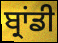
ਬ੍ਰਾਂਡੀ